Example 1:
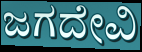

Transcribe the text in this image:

ಜಗದೇವಿ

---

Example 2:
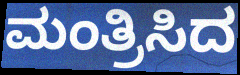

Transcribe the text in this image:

ಮಂತ್ರಿಸಿದ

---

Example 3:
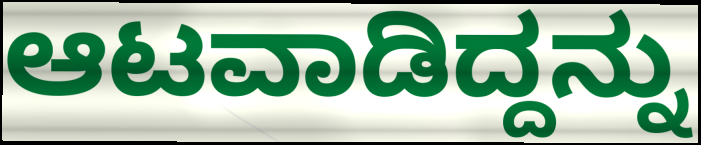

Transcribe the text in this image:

ಆಟವಾಡಿದ್ದನ್ನು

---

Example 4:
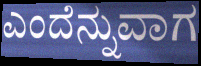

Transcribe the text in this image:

ಎಂದೆನ್ನುವಾಗ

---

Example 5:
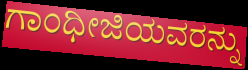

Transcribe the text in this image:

ಗಾಂಧೀಜಿಯವರನ್ನು